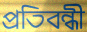
প্রতিবন্ধী